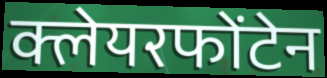
क्लेयरफोंटेन